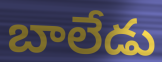
బాలేడు